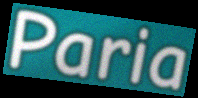
Paria